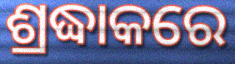
ଶ୍ରଦ୍ଧାକରେ